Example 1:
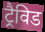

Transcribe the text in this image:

ट्रैविड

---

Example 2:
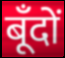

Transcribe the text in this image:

बूँदों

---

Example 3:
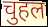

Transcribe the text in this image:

चुहल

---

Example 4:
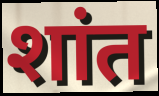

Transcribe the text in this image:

शांत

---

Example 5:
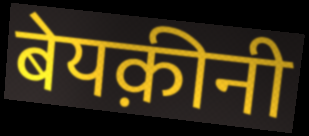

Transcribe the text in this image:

बेयक़ीनी